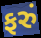
ફરું